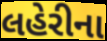
લહેરીના